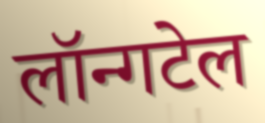
लॉन्गटेल